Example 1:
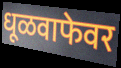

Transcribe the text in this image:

धूळवाफेवर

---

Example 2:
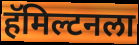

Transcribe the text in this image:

हॅमिल्टनला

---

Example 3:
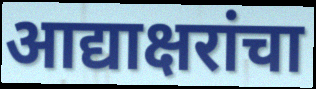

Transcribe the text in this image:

आद्याक्षरांचा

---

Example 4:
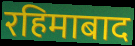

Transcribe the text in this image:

रहिमाबाद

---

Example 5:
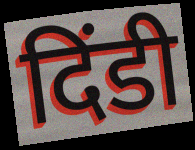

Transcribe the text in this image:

दिंडी